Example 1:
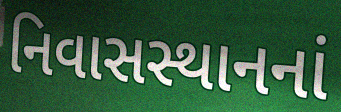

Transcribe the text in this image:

નિવાસસ્થાનનાં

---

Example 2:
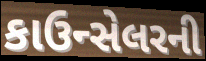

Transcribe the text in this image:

કાઉન્સેલરની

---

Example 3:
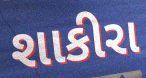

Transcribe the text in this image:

શાકીરા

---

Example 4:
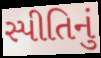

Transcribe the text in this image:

સ્પીતિનું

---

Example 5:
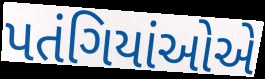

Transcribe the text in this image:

પતંગિયાંઓએ